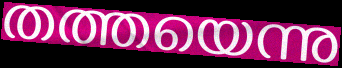
തത്തയെന്നു